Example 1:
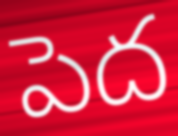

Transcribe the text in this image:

పెద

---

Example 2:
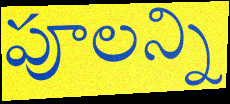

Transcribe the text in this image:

పూలన్ని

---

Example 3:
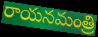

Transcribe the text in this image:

రాయనమంత్రి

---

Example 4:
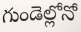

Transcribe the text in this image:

గుండెల్లోనో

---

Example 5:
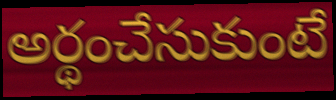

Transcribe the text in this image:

అర్థంచేసుకుంటే